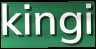
kingi